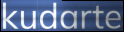
kudarte